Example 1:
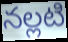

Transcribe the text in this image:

నల్లటి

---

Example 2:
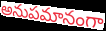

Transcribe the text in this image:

అనుపమానంగా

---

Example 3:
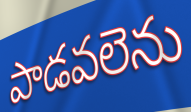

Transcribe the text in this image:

పాడవలెను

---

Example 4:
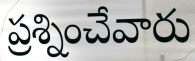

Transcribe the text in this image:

ప్రశ్నించేవారు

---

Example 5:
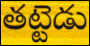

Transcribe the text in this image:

తట్టెడు